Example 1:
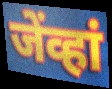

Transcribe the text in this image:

जेंव्हां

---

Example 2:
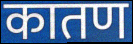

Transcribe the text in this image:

कातण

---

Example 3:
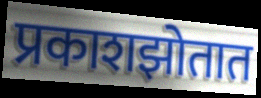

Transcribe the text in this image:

प्रकाशझोतात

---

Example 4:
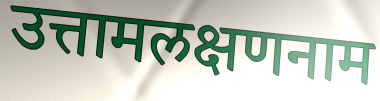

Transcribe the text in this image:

उत्तामलक्षणनाम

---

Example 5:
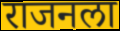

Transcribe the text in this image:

राजनला